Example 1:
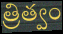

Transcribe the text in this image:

త్రిత్వం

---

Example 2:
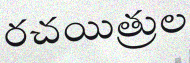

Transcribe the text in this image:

రచయిత్రుల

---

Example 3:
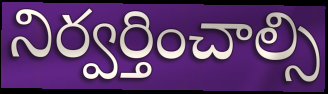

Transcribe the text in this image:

నిర్వర్తించాల్సి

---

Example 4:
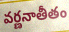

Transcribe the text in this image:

వర్ణనాతీతం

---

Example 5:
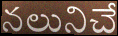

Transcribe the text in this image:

నలునిచే